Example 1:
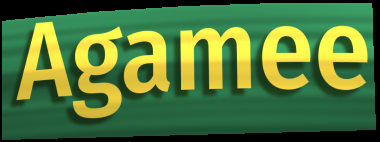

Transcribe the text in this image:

Agamee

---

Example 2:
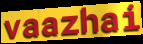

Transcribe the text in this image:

vaazhai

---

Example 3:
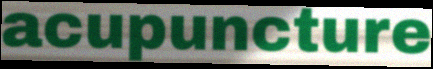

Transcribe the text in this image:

acupuncture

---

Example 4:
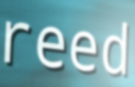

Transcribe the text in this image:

reed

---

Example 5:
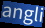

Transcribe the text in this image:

angli